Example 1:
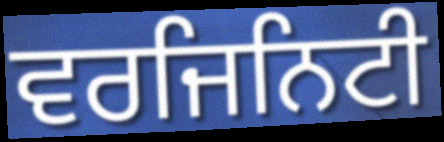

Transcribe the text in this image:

ਵਰਜਿਨਿਟੀ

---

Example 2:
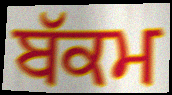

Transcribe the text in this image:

ਬੱਕਮ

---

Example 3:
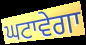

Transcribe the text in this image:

ਘਟਾਵੇਗਾ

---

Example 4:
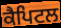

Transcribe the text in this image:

ਕੈਪਿਟਲ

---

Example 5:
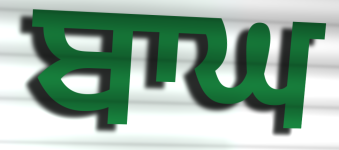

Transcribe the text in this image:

ਬਾਘ